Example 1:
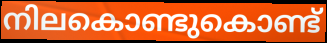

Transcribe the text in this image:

നിലകൊണ്ടുകൊണ്ട്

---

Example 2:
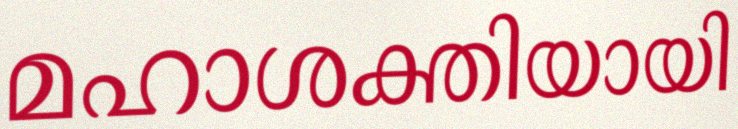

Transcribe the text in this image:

മഹാശക്തിയായി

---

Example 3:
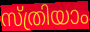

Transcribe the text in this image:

സ്ത്രിയാം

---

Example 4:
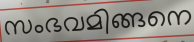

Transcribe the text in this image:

സംഭവമിങ്ങനെ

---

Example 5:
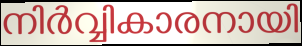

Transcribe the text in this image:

നിർവ്വികാരനായി